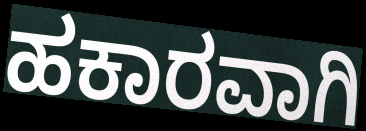
ಹಕಾರವಾಗಿ